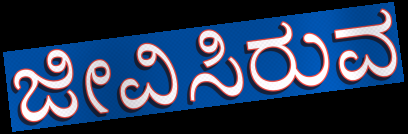
ಜೀವಿಸಿರುವ